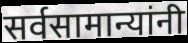
सर्वसामान्यांनी